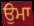
ਉਮਾ